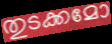
തുടക്കമോ